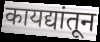
कायद्यांतून